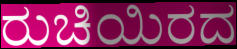
ರುಚಿಯಿರದ